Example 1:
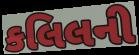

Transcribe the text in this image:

કલિલની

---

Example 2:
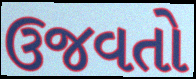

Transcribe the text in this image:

ઉજવતો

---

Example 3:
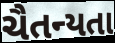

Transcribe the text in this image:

ચૈતન્યતા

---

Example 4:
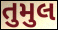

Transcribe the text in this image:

તુમુલ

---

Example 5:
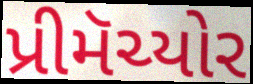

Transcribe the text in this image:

પ્રીમૅચ્યોર